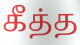
கீத்த